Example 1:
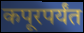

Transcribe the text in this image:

कपूरपर्यंत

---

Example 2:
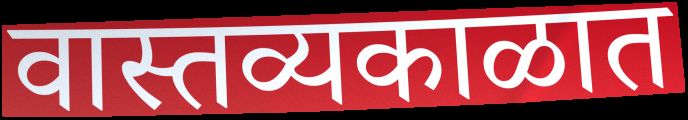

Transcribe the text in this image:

वास्तव्यकाळात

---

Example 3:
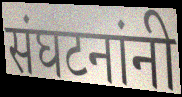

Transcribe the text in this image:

संघटनांनी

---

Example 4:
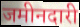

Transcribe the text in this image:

जमीनदारी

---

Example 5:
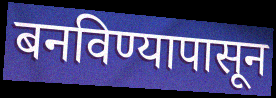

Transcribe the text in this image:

बनविण्यापासून